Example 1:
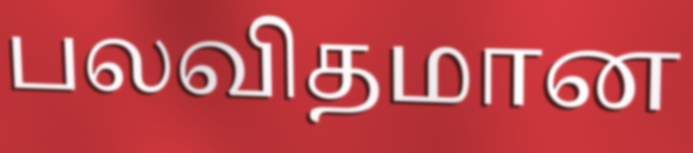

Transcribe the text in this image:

பலவிதமான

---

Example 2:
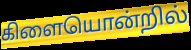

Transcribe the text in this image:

கிளையொன்றில்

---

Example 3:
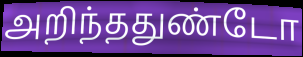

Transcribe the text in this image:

அறிந்ததுண்டோ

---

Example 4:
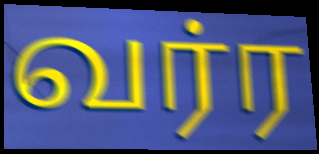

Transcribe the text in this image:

வர்ர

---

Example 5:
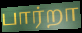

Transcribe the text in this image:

பார்றா